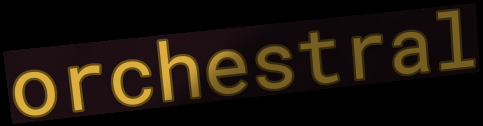
orchestral